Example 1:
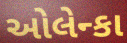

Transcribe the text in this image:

ઓલેન્કા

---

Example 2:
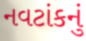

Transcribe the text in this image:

નવટાંકનું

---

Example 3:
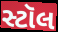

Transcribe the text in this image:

સ્ટૉલ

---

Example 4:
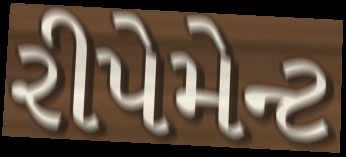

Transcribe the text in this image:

રીપેમેન્ટ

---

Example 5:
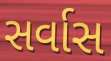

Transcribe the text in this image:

સર્વાસ